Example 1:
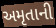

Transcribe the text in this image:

અમૃતાની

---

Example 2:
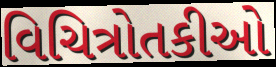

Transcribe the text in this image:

વિચિત્રોતકીઓ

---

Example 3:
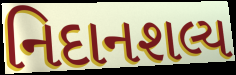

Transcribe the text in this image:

નિદાનશલ્ય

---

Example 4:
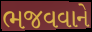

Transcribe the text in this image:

ભજવવાને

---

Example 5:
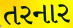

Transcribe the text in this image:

તરનાર